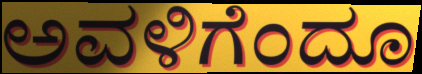
ಅವಳಿಗೆಂದೂ